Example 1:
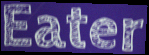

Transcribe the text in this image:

Eater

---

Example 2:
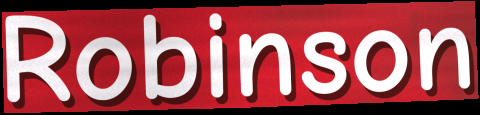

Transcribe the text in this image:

Robinson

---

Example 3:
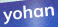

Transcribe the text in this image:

yohan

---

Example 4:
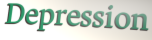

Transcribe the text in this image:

Depression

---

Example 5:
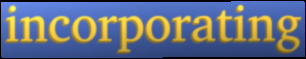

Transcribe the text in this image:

incorporating